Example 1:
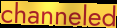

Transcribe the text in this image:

channeled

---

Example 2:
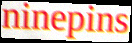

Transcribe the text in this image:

ninepins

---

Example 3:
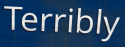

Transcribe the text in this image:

Terribly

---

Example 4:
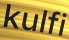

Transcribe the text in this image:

kulfi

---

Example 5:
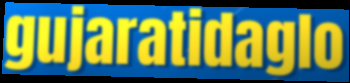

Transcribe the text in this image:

gujaratidaglo